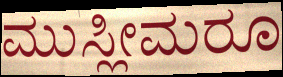
ಮುಸ್ಲೀಮರೂ